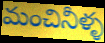
మంచినీళ్ళ